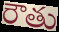
రౌతు